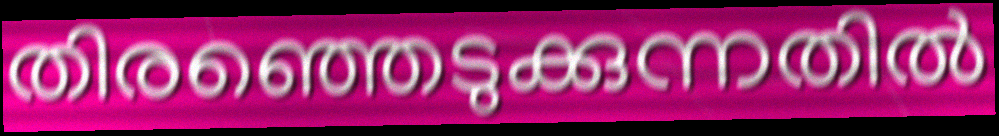
തിരഞ്ഞെടുക്കുന്നതിൽ